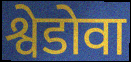
श्वेडोवा